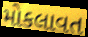
મોકલાવત